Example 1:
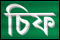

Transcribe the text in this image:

চিফ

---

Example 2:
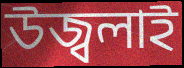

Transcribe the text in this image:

উজ্বলাই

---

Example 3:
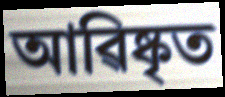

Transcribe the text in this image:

আৱিষ্কৃত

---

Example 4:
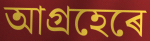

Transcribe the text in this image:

আগ্ৰহেৰে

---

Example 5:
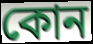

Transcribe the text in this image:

কোন